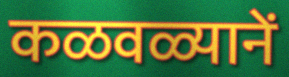
कळवळ्यानें